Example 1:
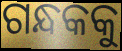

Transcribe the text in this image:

ଗନ୍ଧକକୁ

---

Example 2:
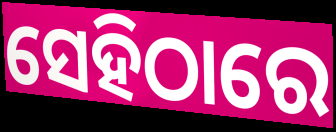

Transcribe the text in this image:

ସେହିଠାରେ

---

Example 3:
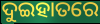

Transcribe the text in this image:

ଦୁଇହାତରେ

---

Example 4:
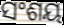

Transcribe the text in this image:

ସଂଶୟ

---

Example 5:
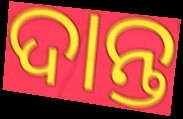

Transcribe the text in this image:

ଦାନ୍ତ